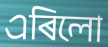
এৰিলো